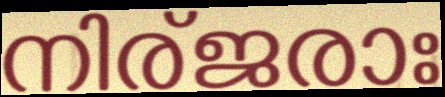
നിര്ജരാഃ